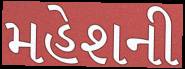
મહેશની